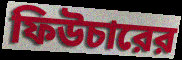
ফিউচারের